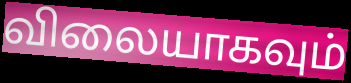
விலையாகவும்